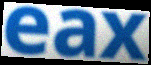
eax